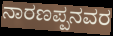
ನಾರಣಪ್ಪನವರ